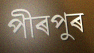
পীৰপুৰ